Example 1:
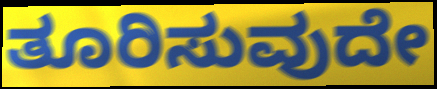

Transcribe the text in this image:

ತೂರಿಸುವುದೇ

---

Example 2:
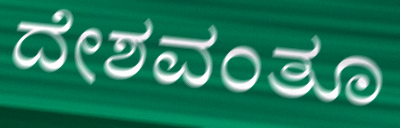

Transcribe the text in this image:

ದೇಶವಂತೂ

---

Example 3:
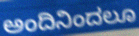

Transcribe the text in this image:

ಅಂದಿನಿಂದಲೂ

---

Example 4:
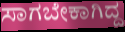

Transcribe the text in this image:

ಸಾಗಬೇಕಾಗಿದ್ದ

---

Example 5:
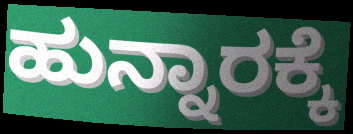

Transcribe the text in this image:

ಹುನ್ನಾರಕ್ಕೆ